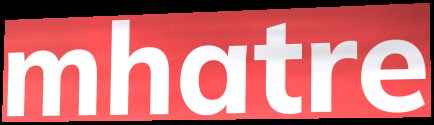
mhatre